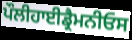
ਪੌਲੀਹਾਈਡ੍ਰੈਮਨੀਓਸ